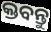
କ୍ତବନ୍ତୁ